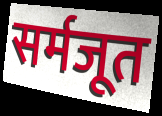
सर्मजूत